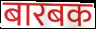
बारबक